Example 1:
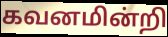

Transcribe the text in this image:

கவனமின்றி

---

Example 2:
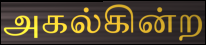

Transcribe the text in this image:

அகல்கின்ற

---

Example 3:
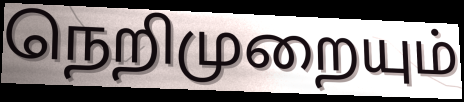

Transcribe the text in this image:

நெறிமுறையும்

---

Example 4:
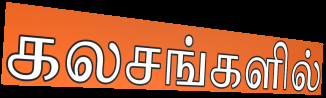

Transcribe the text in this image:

கலசங்களில்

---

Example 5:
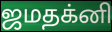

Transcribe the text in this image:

ஜமதக்னி